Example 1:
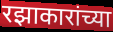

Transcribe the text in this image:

रझाकारांच्या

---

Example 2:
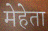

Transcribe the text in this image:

मेहेता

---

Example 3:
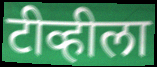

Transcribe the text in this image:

टीव्हीला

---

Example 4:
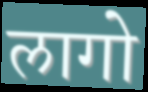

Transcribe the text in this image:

लागो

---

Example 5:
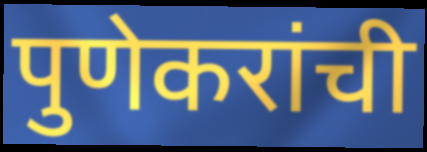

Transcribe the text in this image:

पुणेकरांची